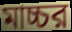
মাচ্চর